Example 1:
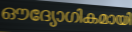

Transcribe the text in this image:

ഔദ്യോഗികമായി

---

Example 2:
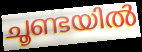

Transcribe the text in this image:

ചൂണ്ടയിൽ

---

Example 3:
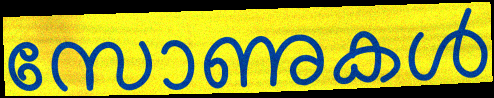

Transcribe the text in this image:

സോണുകൾ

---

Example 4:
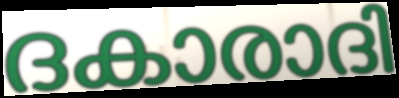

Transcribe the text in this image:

ദകാരാദി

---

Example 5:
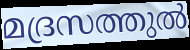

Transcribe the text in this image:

മദ്രസത്തുൽ